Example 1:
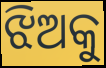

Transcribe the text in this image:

ଝିଅକୁ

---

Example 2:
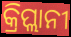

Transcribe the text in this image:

କ୍ରିପ୍ଲାନୀ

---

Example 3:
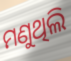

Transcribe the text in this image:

ମଣୁଥିଲି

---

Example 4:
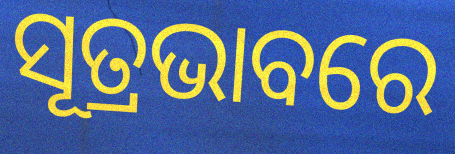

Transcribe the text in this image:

ସୂତ୍ରଭାବରେ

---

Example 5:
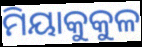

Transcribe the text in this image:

ମିୟାକୁକୁଳ